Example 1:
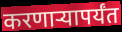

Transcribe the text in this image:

करणाऱ्यापर्यंत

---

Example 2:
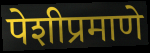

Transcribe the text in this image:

पेशीप्रमाणे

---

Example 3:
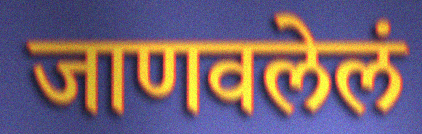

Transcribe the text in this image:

जाणवलेलं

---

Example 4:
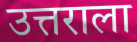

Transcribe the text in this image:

उत्तराला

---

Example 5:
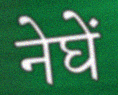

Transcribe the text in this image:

नेघें